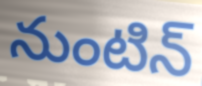
నుంటిన్